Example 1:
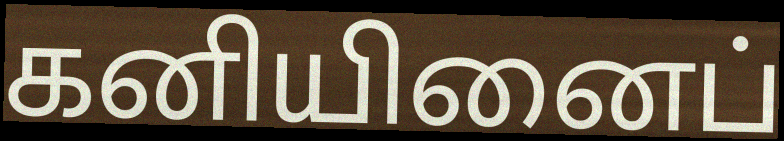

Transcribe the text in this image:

கனியினைப்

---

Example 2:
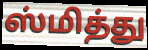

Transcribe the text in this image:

ஸ்மித்து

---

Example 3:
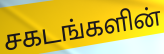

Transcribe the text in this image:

சகடங்களின்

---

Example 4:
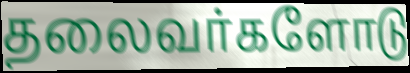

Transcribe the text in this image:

தலைவர்களோடு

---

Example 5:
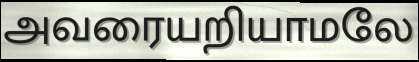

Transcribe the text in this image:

அவரையறியாமலே